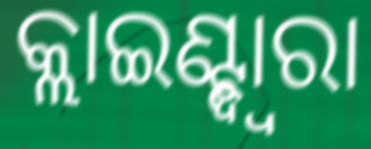
କ୍ଲାଇଣ୍ଟ୍ଦ୍ୱାରା